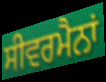
ਸੀਵਰਮੈਨਾਂ